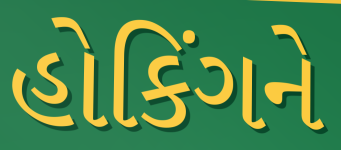
હોકિંગને